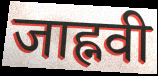
जाह्नवी